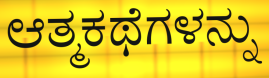
ಆತ್ಮಕಥೆಗಳನ್ನು